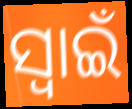
ସ୍ଵାଇଁ